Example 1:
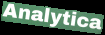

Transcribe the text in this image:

Analytica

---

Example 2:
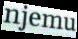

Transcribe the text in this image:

njemu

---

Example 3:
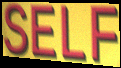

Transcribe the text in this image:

SELF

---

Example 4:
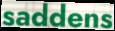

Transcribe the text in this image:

saddens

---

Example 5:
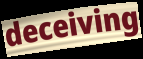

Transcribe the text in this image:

deceiving